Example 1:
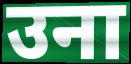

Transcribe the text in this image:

उना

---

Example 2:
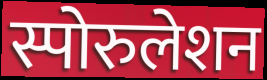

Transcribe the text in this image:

स्पोरुलेशन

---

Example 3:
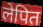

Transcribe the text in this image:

लेपित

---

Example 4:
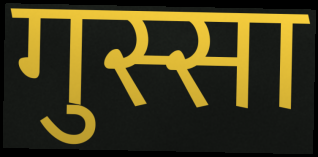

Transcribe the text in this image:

गुस्सा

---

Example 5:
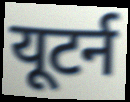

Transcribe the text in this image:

यूटर्न